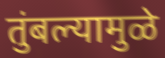
तुंबल्यामुळे